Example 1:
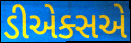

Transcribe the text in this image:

ડીએક્સએ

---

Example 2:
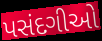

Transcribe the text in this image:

પસંદગીઓ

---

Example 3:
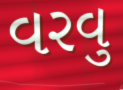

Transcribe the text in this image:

વરવુ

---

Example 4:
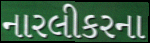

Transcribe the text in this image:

નારલીકરના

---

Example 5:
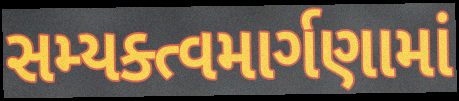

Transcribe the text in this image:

સમ્યક્ત્વમાર્ગણામાં